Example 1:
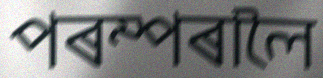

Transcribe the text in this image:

পৰম্পৰালৈ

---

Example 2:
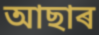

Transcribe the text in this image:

আছাৰ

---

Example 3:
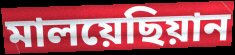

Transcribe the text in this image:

মালয়েছিয়ান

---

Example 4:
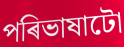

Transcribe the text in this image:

পৰিভাষাটো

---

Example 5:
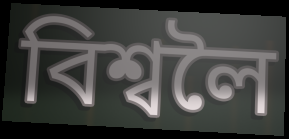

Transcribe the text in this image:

বিশ্বলৈ